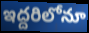
ఇద్దరిలోనూ